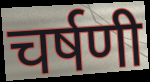
चर्षणी